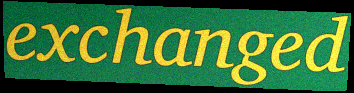
exchanged